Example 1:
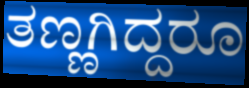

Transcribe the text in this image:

ತಣ್ಣಗಿದ್ದರೂ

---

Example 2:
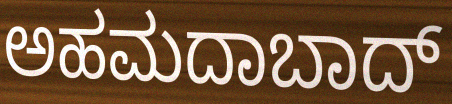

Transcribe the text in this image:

ಅಹಮದಾಬಾದ್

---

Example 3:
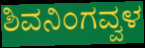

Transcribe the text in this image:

ಶಿವನಿಂಗವ್ವಳ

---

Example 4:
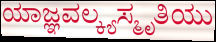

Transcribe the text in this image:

ಯಾಜ್ಞವಲ್ಕ್ಯಸ್ಮೃತಿಯು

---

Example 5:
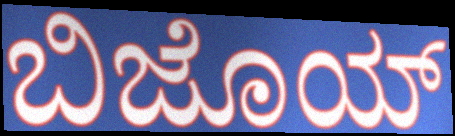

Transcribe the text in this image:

ಬಿಜೊಯ್